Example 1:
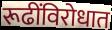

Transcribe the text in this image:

रूढींविरोधात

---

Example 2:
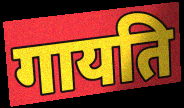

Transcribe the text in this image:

गायति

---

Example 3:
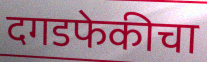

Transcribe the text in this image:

दगडफेकीचा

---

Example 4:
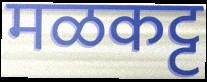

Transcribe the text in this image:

मळकट्ट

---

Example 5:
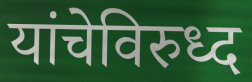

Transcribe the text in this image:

यांचेविरुध्द